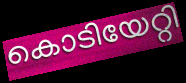
കൊടിയേറ്റി